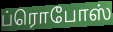
ப்ரொபோஸ்